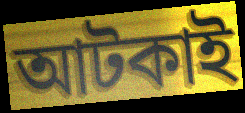
আটকাই